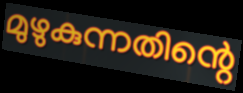
മുഴുകുന്നതിന്റെ